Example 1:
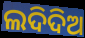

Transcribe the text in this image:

ଲଦିଦିଅ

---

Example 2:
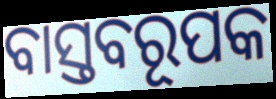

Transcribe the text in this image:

ବାସ୍ତବରୂପକ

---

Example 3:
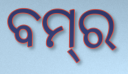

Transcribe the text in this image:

ବମ୍‌ର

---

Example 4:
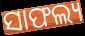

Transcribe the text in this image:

ସାଫଲ୍ଯ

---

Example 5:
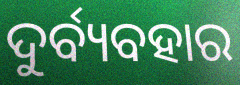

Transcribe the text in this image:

ଦୁର୍ବ୍ୟବହାର